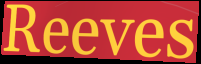
Reeves